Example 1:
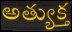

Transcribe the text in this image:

అత్యుక్త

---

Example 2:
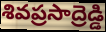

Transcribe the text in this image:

శివప్రసాద్రెడ్డి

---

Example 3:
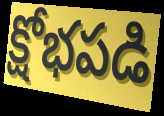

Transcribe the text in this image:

క్షోభపడి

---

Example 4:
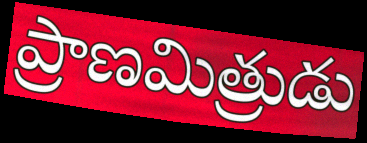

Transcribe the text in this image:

ప్రాణమిత్రుడు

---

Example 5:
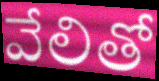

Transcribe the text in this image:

వేలితో